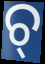
ଚ୍